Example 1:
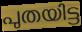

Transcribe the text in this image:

പുതയിട്ട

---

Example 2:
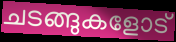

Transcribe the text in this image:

ചടങ്ങുകളോട്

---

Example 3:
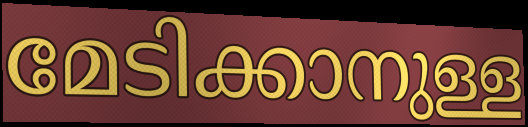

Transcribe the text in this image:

മേടിക്കാനുള്ള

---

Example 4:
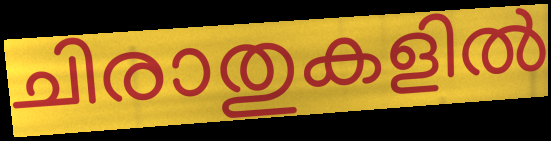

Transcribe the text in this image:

ചിരാതുകളിൽ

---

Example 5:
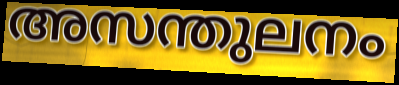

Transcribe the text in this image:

അസന്തുലനം